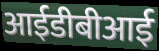
आईडीबीआई